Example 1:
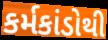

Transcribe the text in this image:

કર્મકાંડોથી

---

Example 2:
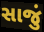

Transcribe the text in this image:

સાજું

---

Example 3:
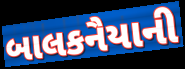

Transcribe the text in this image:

બાલકનૈયાની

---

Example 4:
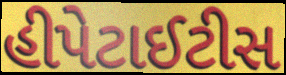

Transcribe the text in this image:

હીપેટાઈટીસ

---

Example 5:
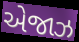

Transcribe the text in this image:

એજાઝ